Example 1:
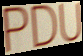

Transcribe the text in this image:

PDU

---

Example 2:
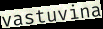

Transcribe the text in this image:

vastuvina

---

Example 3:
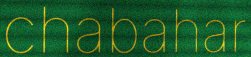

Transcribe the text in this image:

chabahar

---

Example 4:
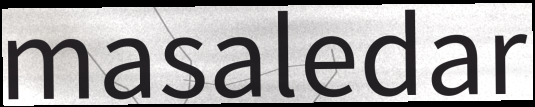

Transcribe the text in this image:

masaledar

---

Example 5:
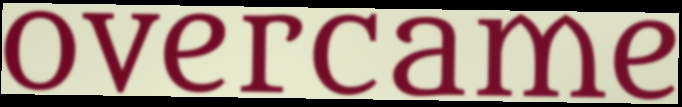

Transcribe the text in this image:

overcame